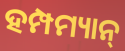
ହମ୍ପମ୍ୟାନ୍